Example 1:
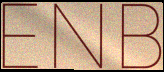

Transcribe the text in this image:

ENB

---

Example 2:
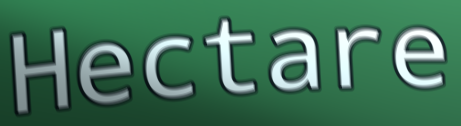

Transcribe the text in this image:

Hectare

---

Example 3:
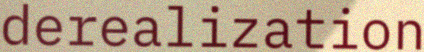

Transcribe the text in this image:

derealization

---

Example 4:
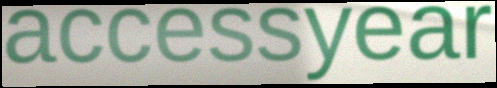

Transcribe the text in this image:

accessyear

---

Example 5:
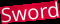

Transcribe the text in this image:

Sword